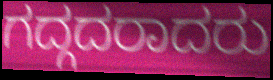
ಗದ್ಗದರಾದರು